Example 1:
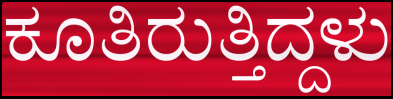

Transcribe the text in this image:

ಕೂತಿರುತ್ತಿದ್ದಳು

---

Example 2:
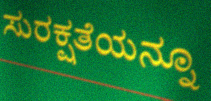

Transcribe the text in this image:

ಸುರಕ್ಷತೆಯನ್ನೂ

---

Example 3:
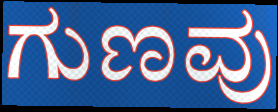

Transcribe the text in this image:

ಗುಣವು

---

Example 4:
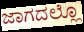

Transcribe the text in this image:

ಜಾಗದಲ್ಲೊ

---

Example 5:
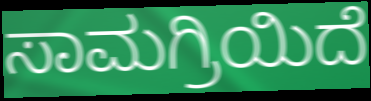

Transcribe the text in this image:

ಸಾಮಗ್ರಿಯಿದೆ